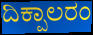
ದಿಕ್ಪಾಲರಂ